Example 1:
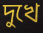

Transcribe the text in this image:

দুখে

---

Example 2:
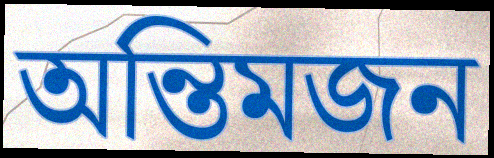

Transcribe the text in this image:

অন্তিমজন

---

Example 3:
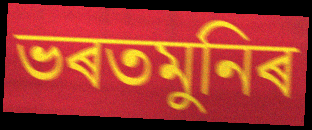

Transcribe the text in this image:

ভৰতমুনিৰ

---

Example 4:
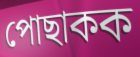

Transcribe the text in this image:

পোছাকক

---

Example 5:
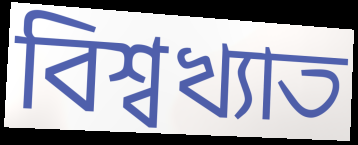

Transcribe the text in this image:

বিশ্বখ্যাত